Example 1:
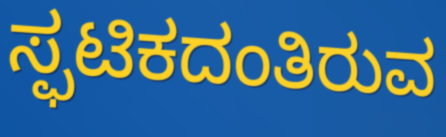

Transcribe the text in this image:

ಸ್ಫಟಿಕದಂತಿರುವ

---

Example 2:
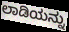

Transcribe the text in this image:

ಲಾಡಿಯನ್ನು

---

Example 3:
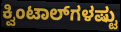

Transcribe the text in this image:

ಕ್ವಿಂಟಾಲ್‌ಗಳಷ್ಟು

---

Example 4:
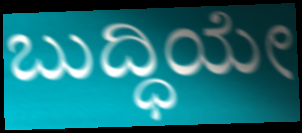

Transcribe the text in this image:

ಬುದ್ಧಿಯೇ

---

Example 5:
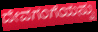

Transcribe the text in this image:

ದೇವಗಂಗೆಯನ್ನು